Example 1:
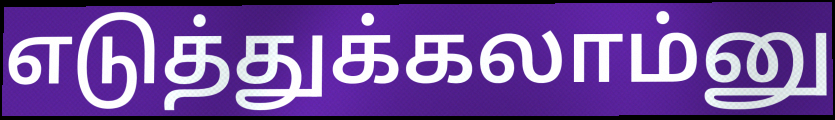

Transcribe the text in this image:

எடுத்துக்கலாம்னு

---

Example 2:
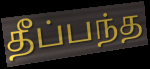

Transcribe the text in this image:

தீப்பந்த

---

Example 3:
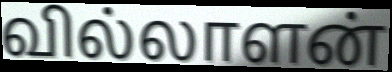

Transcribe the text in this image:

வில்லாளன்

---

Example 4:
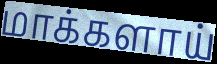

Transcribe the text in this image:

மாக்களாய்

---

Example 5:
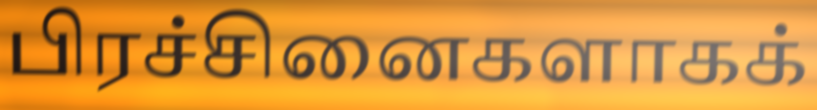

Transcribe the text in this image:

பிரச்சினைகளாகக்